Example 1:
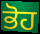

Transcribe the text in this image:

ਭੋਹ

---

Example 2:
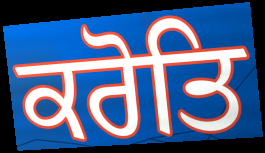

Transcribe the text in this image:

ਕਰੋਤਿ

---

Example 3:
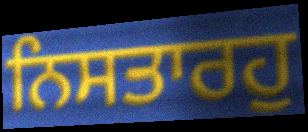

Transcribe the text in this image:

ਨਿਸਤਾਰਹੁ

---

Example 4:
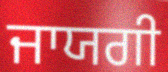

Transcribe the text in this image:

ਜਾਯਗੀ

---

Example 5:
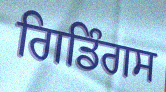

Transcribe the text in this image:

ਗਿਡਿੰਗਸ